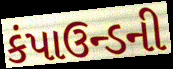
કંપાઉન્ડની